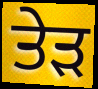
ਤੇੜ